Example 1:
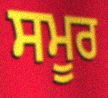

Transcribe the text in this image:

ਸਮੂਰ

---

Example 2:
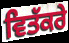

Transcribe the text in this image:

ਵਿਤੱਕਰੇ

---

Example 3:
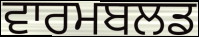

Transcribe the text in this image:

ਵਾਰਮਬਲਡ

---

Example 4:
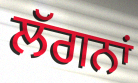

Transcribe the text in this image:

ਲੱਗਨਾਂ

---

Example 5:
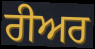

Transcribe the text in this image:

ਰੀਅਰ